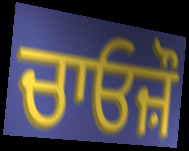
ਚਾਓਜ਼ੌ